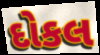
દોકલ